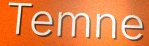
Temne